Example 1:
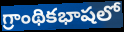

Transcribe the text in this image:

గ్రాంథికభాషలో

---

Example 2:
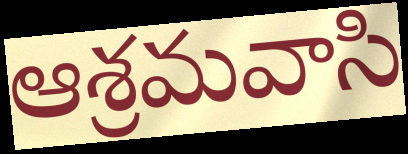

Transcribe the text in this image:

ఆశ్రమవాసి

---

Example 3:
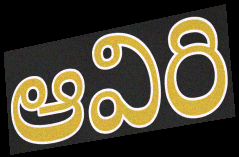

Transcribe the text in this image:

ఆవిరి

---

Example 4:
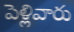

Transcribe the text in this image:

పెళ్లివారు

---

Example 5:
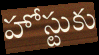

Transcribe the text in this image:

హోస్టుకు